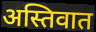
अस्तिवात